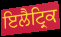
ਇਲੈਟ੍ਰਿਕ